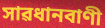
সাৱধানবাণী